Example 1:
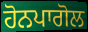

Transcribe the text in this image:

ਹੋਨਪਾਗੋਲ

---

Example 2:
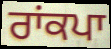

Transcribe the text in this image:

ਰਾਂਕਪਾ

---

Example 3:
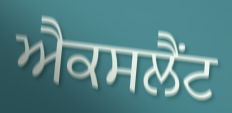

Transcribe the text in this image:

ਐਕਸਲੈਂਟ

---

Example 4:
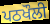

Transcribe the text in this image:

ਪਠਖੌਲੀ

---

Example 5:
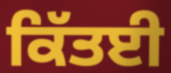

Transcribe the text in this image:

ਕਿੱਤਈ